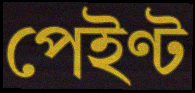
পেইণ্ট